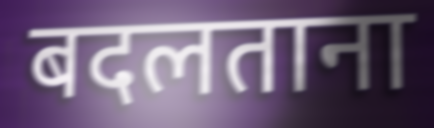
बदलताना